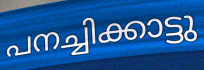
പനച്ചിക്കാട്ടു